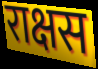
राक्षस